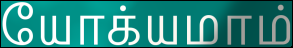
யோக்யமாம்